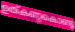
ഉത്കണ്ഠകൊണ്ടു